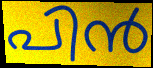
പിൻ